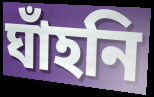
ঘাঁহনি